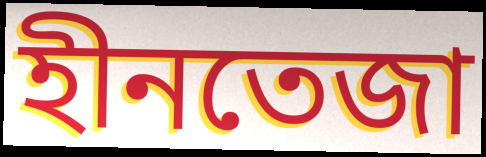
হীনতেজা